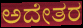
ಅದೇತರ